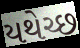
યથેચ્છ